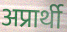
अप्रार्थी